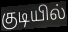
குடியில்